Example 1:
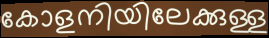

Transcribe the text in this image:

കോളനിയിലേക്കുള്ള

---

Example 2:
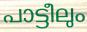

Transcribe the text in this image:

പാട്ടീലും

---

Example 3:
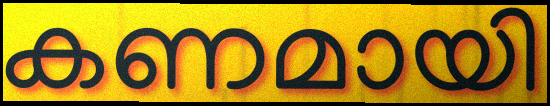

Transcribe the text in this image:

കണമായി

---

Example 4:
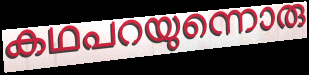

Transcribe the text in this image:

കഥപറയുന്നൊരു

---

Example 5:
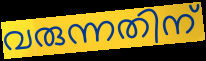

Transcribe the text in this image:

വരുന്നതിന്